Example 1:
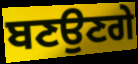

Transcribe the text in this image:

ਬਣਉਣਗੇ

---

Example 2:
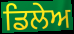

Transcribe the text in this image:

ਡਿਲੇਅ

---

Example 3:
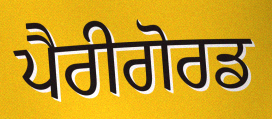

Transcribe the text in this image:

ਪੈਰੀਗੋਰਡ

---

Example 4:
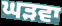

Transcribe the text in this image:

ਘੜਵਾ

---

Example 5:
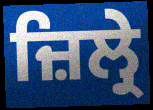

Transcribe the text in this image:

ਜ਼ਿਲ੍ਰੇ